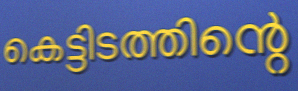
കെട്ടിടത്തിന്റെ